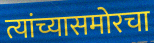
त्यांच्यासमोरचा